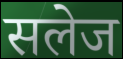
सलेज